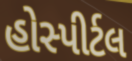
હોસ્પીર્ટલ